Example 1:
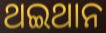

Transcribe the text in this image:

ଥଇଥାନ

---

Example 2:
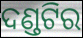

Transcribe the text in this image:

ଦଣ୍ଡଟିର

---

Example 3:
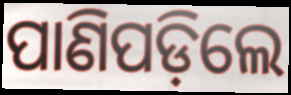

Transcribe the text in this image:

ପାଣିପଡ଼ିଲେ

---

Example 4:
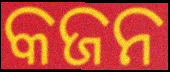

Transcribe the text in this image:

କଜନ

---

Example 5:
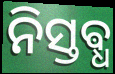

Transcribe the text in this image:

ନିସ୍ତଵ୍ଧ